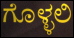
ಗೊಳ್ಳಲಿ